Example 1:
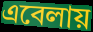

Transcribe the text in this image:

এবেলায়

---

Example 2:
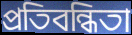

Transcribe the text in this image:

প্রতিবন্ধিতা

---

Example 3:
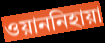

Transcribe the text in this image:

ওয়াননিহায়া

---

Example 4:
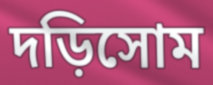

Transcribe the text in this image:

দড়িসোম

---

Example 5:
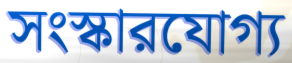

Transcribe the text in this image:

সংস্কারযোগ্য